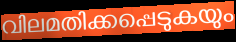
വിലമതിക്കപ്പെടുകയും